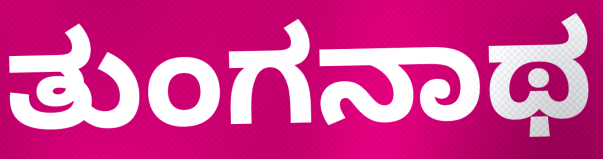
ತುಂಗನಾಥ